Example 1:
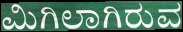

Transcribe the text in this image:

ಮಿಗಿಲಾಗಿರುವ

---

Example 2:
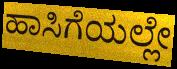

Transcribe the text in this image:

ಹಾಸಿಗೆಯಲ್ಲೇ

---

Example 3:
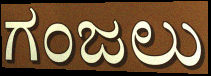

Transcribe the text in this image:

ಗಂಜಲು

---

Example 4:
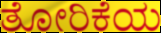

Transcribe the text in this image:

ತೋರಿಕೆಯ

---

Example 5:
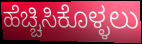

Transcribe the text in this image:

ಹೆಚ್ಚಿಸಿಕೊಳ್ಳಲು